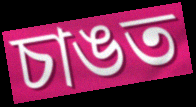
চাঙত